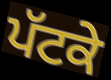
ਪੱਟਕੇ